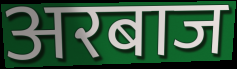
अरबाज